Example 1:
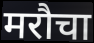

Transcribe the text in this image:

मरौचा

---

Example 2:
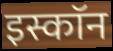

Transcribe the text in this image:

इस्‍कॉन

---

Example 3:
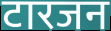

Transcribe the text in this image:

टारजन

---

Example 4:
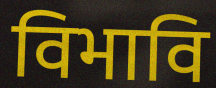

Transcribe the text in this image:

विभावि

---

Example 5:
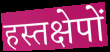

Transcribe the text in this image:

हस्तक्षेपों